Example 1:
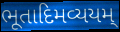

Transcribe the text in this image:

ભૂતાદિમવ્યયમ્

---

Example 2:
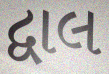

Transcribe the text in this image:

દ્વાલ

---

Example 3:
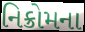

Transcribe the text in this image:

નિક્રોમના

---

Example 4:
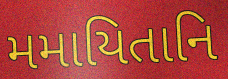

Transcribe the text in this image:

મમાયિતાનિ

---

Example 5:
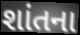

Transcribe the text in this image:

શાંતના